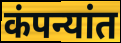
कंपन्यांत